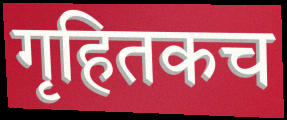
गृहितकच